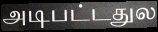
அடிபட்டதுல